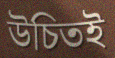
উচিতই